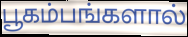
பூகம்பங்களால்